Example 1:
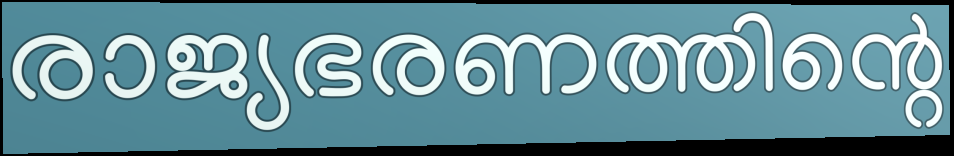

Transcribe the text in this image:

രാജ്യഭരണത്തിന്റെ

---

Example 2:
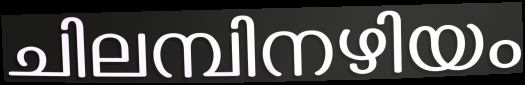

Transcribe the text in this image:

ചിലമ്പിനഴിയം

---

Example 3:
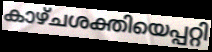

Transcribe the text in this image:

കാഴ്ചശക്തിയെപ്പറ്റി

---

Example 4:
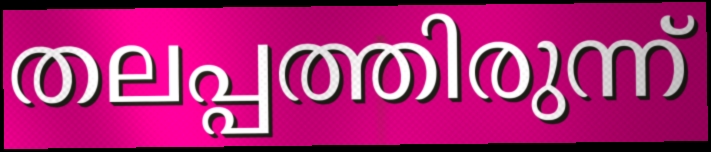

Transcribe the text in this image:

തലപ്പത്തിരുന്ന്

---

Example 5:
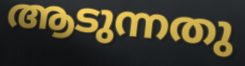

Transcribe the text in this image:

ആടുന്നതു